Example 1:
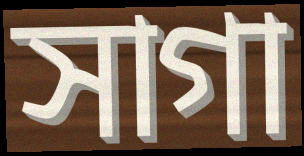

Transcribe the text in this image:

সাগা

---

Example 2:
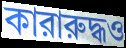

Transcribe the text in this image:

কারারুদ্ধও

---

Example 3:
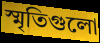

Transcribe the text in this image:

স্মৃতিগুলো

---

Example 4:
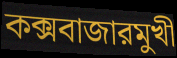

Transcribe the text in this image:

কক্সবাজারমুখী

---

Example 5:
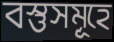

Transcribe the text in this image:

বস্তুসমূহে